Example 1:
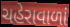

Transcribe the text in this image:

ચહેરાવાળાં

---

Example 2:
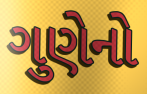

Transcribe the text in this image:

ગુણેનો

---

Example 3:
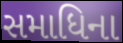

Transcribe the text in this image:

સમાધિના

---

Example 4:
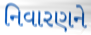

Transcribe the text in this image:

નિવારણને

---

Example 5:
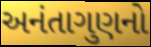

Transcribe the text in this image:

અનંતાગુણનો